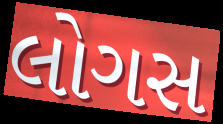
લોગસ